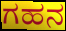
ಗಹನ